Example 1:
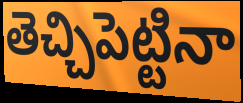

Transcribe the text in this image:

తెచ్చిపెట్టినా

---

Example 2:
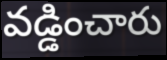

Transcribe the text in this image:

వడ్డించారు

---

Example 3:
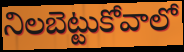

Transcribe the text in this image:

నిలబెట్టుకోవాలో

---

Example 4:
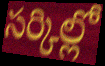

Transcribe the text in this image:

సర్కిల్లో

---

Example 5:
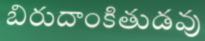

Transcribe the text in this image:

బిరుదాంకితుడవు